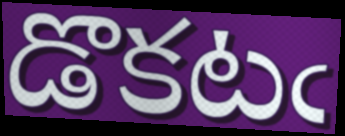
డొకటఁ